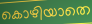
കൊഴിയാതെ